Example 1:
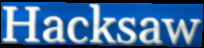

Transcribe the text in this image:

Hacksaw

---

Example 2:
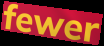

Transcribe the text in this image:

fewer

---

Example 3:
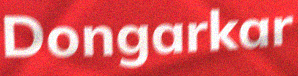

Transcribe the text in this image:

Dongarkar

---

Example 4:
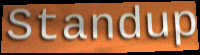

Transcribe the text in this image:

Standup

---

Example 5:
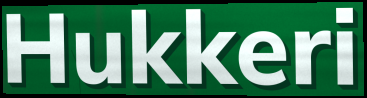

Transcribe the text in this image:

Hukkeri